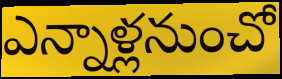
ఎన్నాళ్లనుంచో